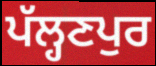
ਪੱਲ੍ਹਣਪੁਰ